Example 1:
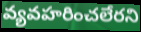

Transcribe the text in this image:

వ్యవహరించలేరని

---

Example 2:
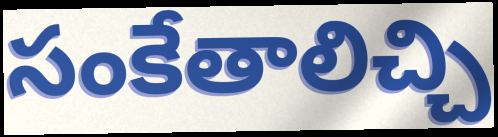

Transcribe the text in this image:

సంకేతాలిచ్చి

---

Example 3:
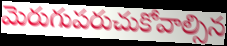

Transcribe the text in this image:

మెరుగుపరుచుకోవాల్సిన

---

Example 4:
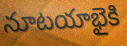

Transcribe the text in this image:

నూటయాభైకి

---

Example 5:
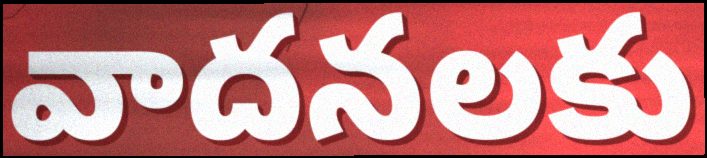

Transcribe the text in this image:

వాదనలకు